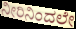
ನೀರಿನಿಂದಲೇ